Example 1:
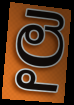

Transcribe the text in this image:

లై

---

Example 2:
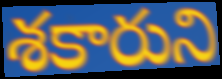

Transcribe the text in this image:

శకారుని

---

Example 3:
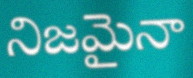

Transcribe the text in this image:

నిజమైనా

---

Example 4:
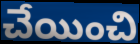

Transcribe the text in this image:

చేయించి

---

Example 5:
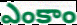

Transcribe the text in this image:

ఎంకాం